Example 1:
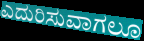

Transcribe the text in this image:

ಎದುರಿಸುವಾಗಲೂ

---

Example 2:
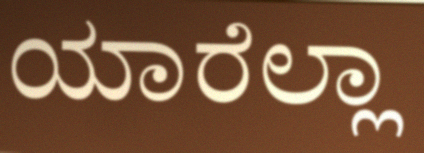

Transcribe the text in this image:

ಯಾರೆಲ್ಲಾ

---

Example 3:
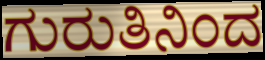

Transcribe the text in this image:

ಗುರುತಿನಿಂದ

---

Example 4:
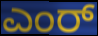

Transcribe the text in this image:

ಎಂರ್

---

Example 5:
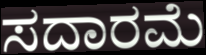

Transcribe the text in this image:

ಸದಾರಮೆ